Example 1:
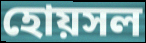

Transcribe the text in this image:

হোয়সল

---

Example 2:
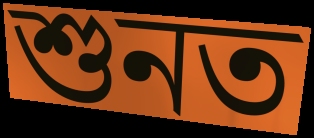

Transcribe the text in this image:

শুনত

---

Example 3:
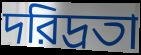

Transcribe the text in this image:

দরিদ্রতা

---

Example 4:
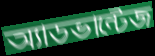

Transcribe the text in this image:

অ্যাডভান্টেজ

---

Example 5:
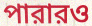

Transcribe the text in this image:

পারারও